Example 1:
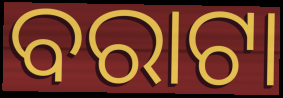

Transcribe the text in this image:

ବରାଟା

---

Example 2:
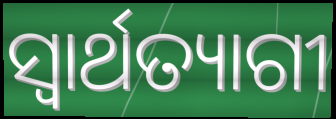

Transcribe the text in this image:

ସ୍ୱାର୍ଥତ୍ୟାଗୀ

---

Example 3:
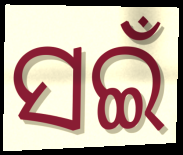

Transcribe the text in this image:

ସଇଁ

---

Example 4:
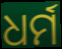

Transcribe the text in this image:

ଧର୍ମ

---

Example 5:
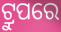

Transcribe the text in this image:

ଟ୍ରୁପରେ